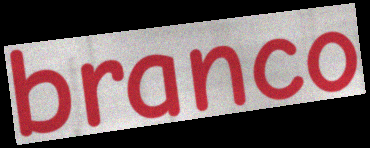
branco